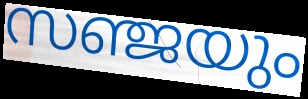
സഞ്ജയും